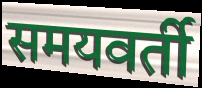
समयवर्ती